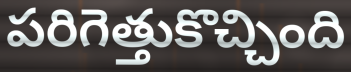
పరిగెత్తుకొచ్చింది